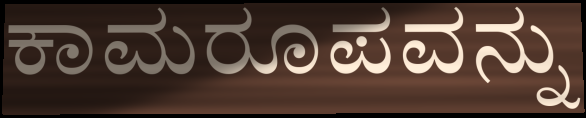
ಕಾಮರೂಪವನ್ನು